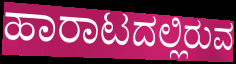
ಹಾರಾಟದಲ್ಲಿರುವ